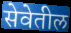
सेवेतील